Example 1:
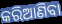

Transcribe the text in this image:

କରିଆଣିବା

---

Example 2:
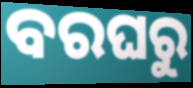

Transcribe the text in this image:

ବରଘରୁ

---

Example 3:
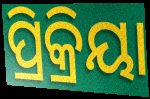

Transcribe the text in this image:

ପ୍ରିକ୍ରିୟା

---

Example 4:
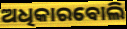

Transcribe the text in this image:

ଅଧିକାରବୋଲି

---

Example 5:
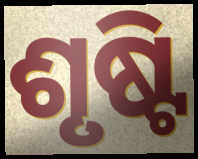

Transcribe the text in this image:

ଶୃଷ୍ଟି